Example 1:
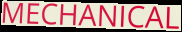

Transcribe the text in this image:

MECHANICAL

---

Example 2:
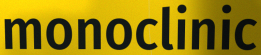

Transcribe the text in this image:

monoclinic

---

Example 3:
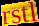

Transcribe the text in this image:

rstl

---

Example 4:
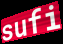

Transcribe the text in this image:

sufi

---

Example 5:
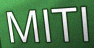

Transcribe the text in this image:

MITI